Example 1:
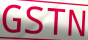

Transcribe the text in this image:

GSTN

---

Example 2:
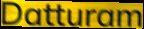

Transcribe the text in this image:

Datturam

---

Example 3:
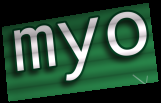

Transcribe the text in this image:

myo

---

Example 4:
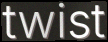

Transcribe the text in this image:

twist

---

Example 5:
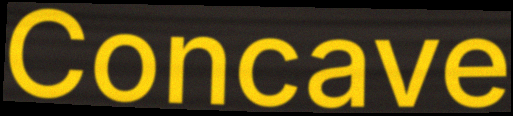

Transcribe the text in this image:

Concave